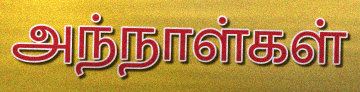
அந்நாள்கள்